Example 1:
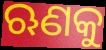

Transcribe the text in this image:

ଋଣକୁ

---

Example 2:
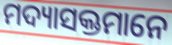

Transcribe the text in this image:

ମଦ୍ୟାସକ୍ତମାନେ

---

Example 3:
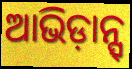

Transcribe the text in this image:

ଆଭିଡ଼ାନ୍ସ୍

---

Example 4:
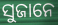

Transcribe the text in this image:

ସୁଜାନେ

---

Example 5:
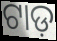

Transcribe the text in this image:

ଟାଡ଼